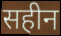
सहीन